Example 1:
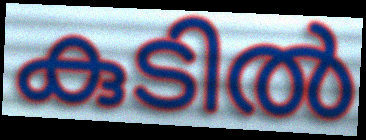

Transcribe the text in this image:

കുടിൽ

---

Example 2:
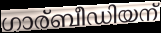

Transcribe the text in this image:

ഗാര്ബീഡിയന്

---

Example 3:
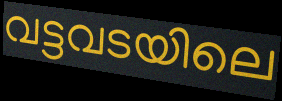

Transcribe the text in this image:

വട്ടവടയിലെ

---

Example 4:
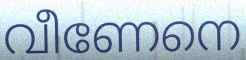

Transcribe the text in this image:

വീണേനെ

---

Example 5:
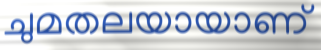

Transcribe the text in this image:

ചുമതലയായാണ്